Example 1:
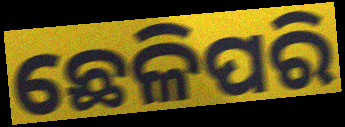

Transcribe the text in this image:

ଛେଳିପରି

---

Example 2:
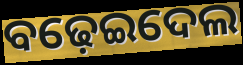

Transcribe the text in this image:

ବଢ଼େଇଦେଲ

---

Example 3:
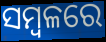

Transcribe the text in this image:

ସମ୍ବଳରେ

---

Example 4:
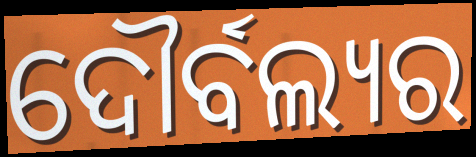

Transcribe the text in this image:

ଦୌର୍ବଲ୍ୟର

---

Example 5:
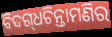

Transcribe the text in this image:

ବିଦଗ୍‌ଧଚିନ୍ତାମଣିର